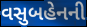
વસુબહેનની